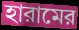
হারামের